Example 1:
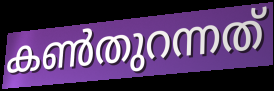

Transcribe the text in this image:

കൺതുറന്നത്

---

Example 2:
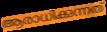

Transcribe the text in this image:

ആരാധിക്കുന്നത്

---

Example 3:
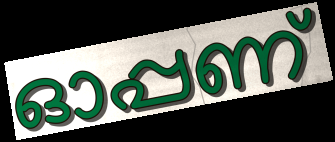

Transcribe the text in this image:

ഓപ്പണ്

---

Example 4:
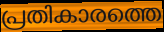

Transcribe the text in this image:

പ്രതികാരത്തെ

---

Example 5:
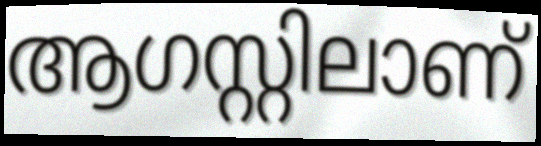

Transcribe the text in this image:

ആഗസ്റ്റിലാണ്